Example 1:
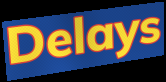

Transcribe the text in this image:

Delays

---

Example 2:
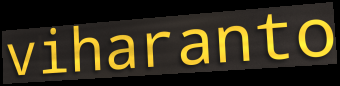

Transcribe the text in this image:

viharanto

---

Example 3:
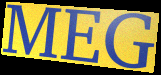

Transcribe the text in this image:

MEG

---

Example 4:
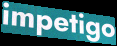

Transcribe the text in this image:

impetigo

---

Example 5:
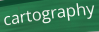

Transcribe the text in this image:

cartography